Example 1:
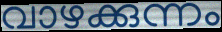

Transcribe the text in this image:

വാഴക്കുന്നം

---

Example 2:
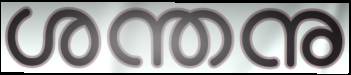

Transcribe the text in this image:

ശന്തനു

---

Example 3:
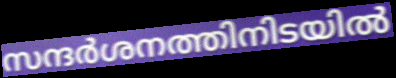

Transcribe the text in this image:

സന്ദർശനത്തിനിടയിൽ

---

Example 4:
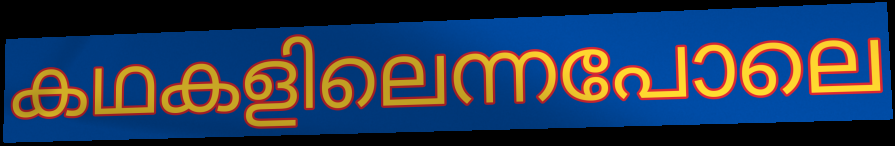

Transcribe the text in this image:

കഥകളിലെന്നപോലെ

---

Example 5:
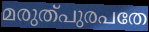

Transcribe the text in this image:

മരുത്പുരപതേ